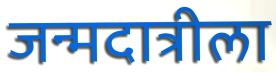
जन्मदात्रीला